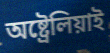
অষ্ট্ৰেলিয়াই